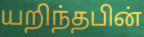
யறிந்தபின்